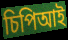
চিপিআই